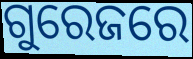
ଗୁରେଜରେ